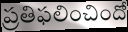
ప్రతిఫలించిందో